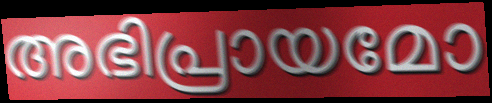
അഭിപ്രായമോ